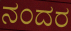
ನಂದರ